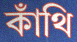
কাঁথি